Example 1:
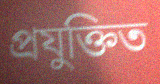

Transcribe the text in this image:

প্ৰযুক্তিত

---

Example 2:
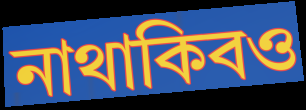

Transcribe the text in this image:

নাথাকিবও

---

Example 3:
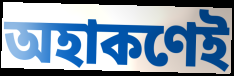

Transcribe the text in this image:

অহাকণেই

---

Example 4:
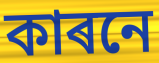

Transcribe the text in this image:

কাৰনে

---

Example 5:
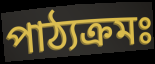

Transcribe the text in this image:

পাঠ্যক্ৰমঃ